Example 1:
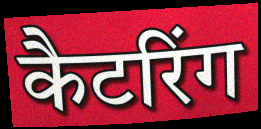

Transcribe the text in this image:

कैटरिंग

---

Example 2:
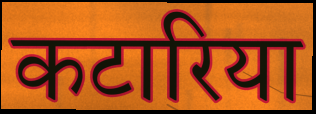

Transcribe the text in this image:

कटारिया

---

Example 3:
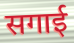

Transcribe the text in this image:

सगाई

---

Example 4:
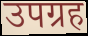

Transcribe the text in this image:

उपग्रह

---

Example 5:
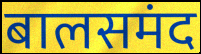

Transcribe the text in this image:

बालसमंद